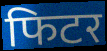
फिटर